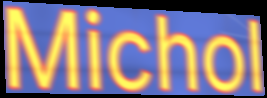
Michol